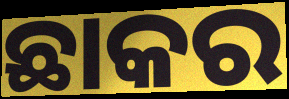
ଛାକର